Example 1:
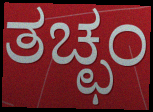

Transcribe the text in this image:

ತಚ್ಛಂ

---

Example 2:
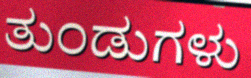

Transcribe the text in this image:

ತುಂಡುಗಳು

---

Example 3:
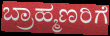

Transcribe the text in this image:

ಬ್ರಾಹ್ಮಣರಿಗೆ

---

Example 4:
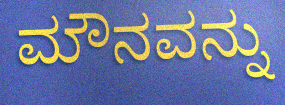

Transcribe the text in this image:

ಮೌನವನ್ನು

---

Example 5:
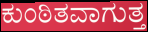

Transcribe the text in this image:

ಕುಂಠಿತವಾಗುತ್ತ